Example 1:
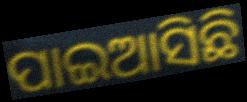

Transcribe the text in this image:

ପାଇଆସିଛି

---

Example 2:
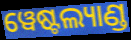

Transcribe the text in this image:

ୱେଷ୍ଟଲ୍ୟାଣ୍ଡ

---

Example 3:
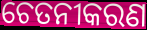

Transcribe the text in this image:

ଚେତନୀକରଣ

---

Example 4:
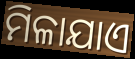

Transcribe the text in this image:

ମିଳାଯାଏ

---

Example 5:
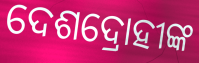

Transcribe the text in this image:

ଦେଶଦ୍ରୋହୀଙ୍କ